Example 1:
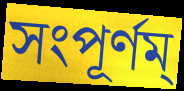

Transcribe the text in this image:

সংপূর্ণম্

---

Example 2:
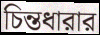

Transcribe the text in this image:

চিন্তধারার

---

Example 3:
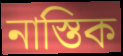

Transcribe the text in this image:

নাস্তিক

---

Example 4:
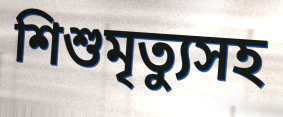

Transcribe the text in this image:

শিশুমৃত্যুসহ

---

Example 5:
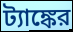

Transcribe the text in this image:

ট্যাঙ্কের